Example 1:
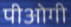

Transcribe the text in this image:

पीओगी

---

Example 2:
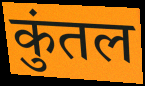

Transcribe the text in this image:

कुंतल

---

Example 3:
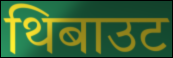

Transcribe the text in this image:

थिबाउट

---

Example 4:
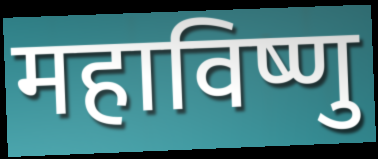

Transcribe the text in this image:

महाविष्णु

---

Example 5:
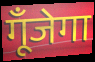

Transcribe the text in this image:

गूँजेगा